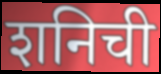
शनिची